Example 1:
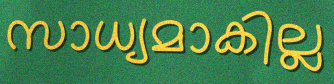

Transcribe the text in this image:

സാധ്യമാകില്ല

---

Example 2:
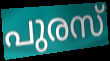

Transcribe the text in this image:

പുരസ്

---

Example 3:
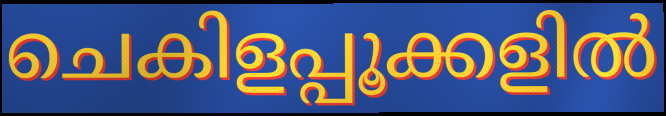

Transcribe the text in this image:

ചെകിളപ്പൂക്കളിൽ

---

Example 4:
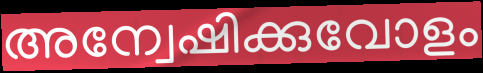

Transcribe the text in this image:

അന്വേഷിക്കുവോളം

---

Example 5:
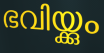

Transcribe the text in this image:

ഭവിയ്ക്കും